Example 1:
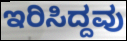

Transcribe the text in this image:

ಇರಿಸಿದ್ದವು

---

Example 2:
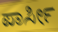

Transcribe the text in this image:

ಪಾರ್ಸೀ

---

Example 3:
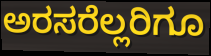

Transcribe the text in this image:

ಅರಸರೆಲ್ಲರಿಗೂ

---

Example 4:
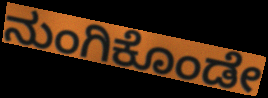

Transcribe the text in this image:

ನುಂಗಿಕೊಂಡೇ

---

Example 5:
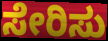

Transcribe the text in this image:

ಸೇರಿಸು